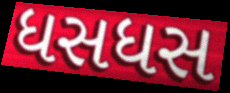
ધસધસ